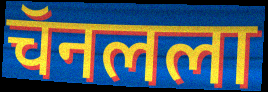
चॅनलला